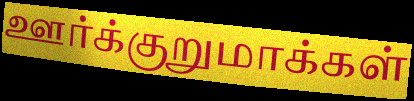
ஊர்க்குறுமாக்கள்